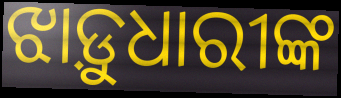
ଝାଡ଼ୁଧାରୀଙ୍କ